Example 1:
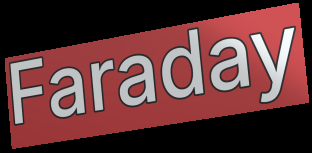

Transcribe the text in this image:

Faraday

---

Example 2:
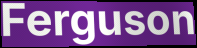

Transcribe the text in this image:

Ferguson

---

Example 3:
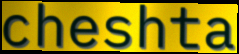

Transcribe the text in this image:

cheshta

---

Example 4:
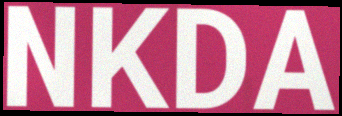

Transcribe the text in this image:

NKDA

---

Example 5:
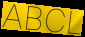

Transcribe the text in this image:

ABCL